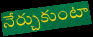
నేర్చుకుంటా